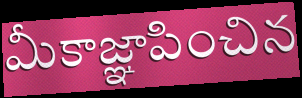
మీకాజ్ఞాపించిన